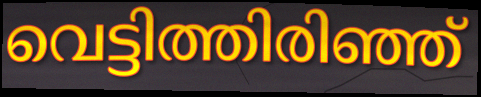
വെട്ടിത്തിരിഞ്ഞ്